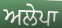
ਅਲੇਪਾ